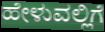
ಹೇಳುವಲ್ಲಿಗೆ